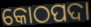
କୋଠପଦା